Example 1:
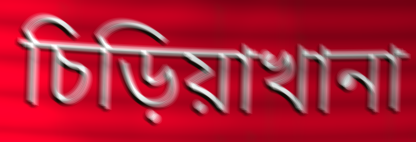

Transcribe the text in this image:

চিড়িয়াখানা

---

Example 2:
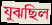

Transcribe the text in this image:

যুঝছিল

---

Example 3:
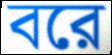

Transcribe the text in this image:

বরে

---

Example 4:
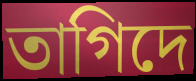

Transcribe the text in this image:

তাগিদে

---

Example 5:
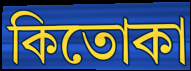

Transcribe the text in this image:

কিতোকা